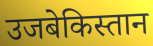
उजबेकिस्तान